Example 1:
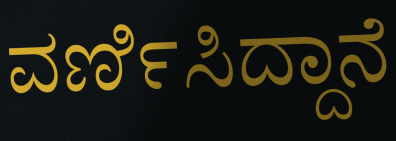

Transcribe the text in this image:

ವರ್ಣಿಸಿದ್ದಾನೆ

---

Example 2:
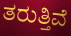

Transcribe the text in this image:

ತರುತ್ತಿವೆ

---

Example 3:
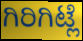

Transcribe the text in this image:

ಗಿರಿಗಿಟ್ಲೆ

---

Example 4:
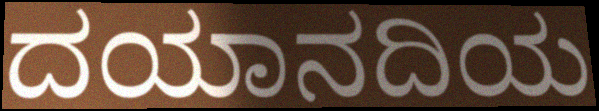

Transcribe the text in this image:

ದಯಾನದಿಯ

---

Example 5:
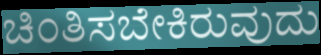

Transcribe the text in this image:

ಚಿಂತಿಸಬೇಕಿರುವುದು